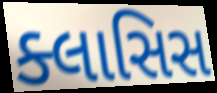
ક્લાસિસ